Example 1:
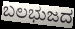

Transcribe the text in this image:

ಬಲಭುಜದ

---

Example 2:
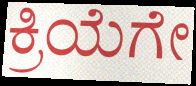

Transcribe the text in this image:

ಕ್ರಿಯೆಗೇ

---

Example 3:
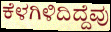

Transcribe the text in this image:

ಕೆಳಗಿಳಿದಿದ್ದೆವು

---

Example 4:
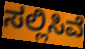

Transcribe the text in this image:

ಸಲ್ಲಿಸಿವೆ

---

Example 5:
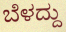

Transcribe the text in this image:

ಬೆಳದ್ದು